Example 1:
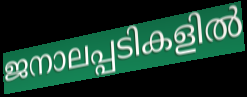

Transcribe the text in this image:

ജനാലപ്പടികളിൽ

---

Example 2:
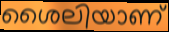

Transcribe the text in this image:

ശൈലിയാണ്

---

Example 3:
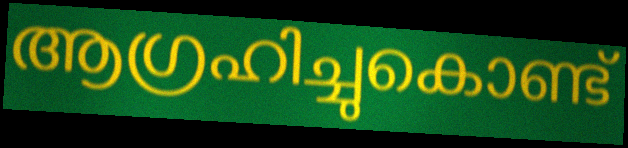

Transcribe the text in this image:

ആഗ്രഹിച്ചുകൊണ്ട്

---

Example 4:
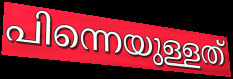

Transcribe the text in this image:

പിന്നെയുള്ളത്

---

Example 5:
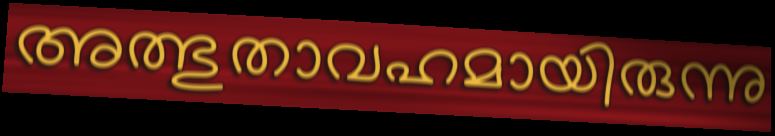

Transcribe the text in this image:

അത്ഭുതാവഹമായിരുന്നു